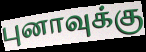
புனாவுக்கு